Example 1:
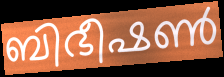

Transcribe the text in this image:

ബിഭീഷൺ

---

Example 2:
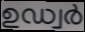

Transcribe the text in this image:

ഉഡ്വർ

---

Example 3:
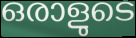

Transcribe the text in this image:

ഒരാളുടെ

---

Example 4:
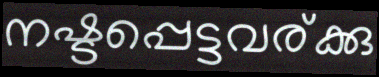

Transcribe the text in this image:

നഷ്ടപ്പെട്ടവര്ക്കു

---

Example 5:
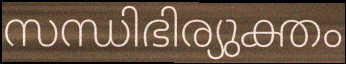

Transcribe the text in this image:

സന്ധിഭിര്യുക്തം